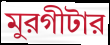
মুরগীটার